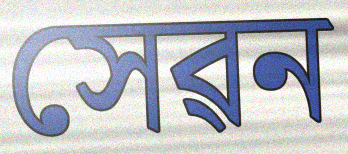
সেৱন